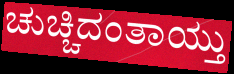
ಚುಚ್ಚಿದಂತಾಯ್ತು